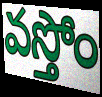
వస్తోం